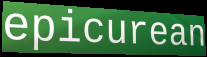
epicurean